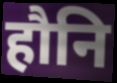
हौनि